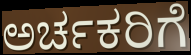
ಅರ್ಚಕರಿಗೆ